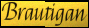
Brautigan